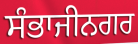
ਸੰਭਾਜੀਨਗਰ